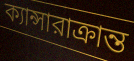
ক্যান্সারাক্রান্ত